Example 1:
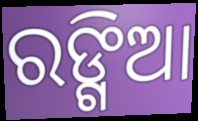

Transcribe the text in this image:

ରଙ୍ଗିଆ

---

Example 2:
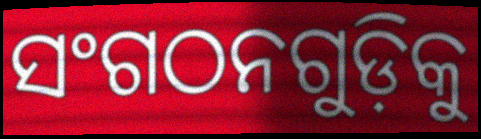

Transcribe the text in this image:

ସଂଗଠନଗୁଡ଼ିକୁ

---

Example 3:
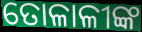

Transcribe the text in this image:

ତୋଳାଳୀଙ୍କ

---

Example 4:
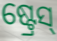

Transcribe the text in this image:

ଷ୍ଟ୍ରେସ୍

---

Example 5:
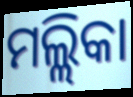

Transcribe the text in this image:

ମଲ୍ଲିକା